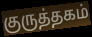
குருத்தகம்